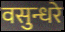
वसुन्धरे